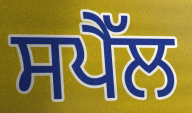
ਸਪੈੱਲ